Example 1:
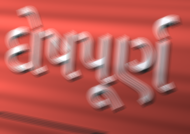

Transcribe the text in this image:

દોષપૂર્ણ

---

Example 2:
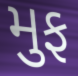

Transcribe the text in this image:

મુફ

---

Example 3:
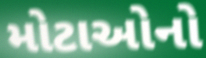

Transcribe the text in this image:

મોટાઓનો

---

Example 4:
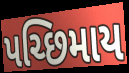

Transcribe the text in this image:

પચ્છિમાય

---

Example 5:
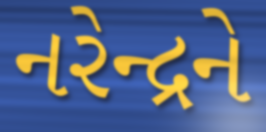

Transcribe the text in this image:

નરેન્દ્રને